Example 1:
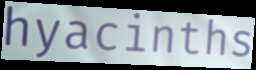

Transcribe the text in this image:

hyacinths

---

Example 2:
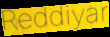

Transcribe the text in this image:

Reddiyar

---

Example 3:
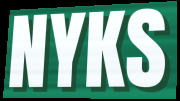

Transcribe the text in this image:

NYKS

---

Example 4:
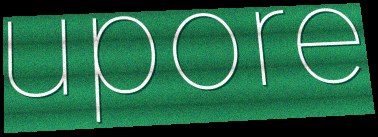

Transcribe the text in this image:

upore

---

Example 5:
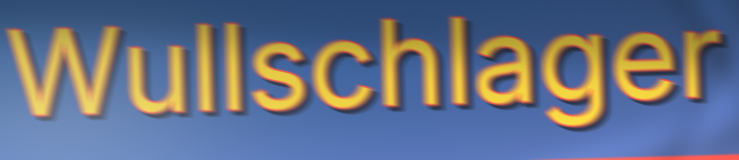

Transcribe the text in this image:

Wullschlager